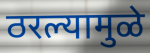
ठरल्यामुळे